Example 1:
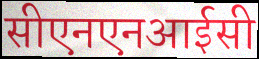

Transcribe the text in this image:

सीएनएनआईसी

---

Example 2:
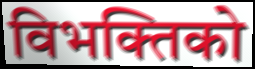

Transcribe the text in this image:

विभक्तिको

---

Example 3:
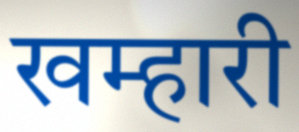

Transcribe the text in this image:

खम्हारी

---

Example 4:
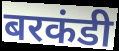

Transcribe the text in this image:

बरकंडी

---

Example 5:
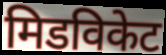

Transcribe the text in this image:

मिडविकेट